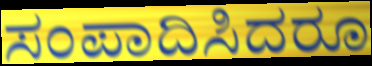
ಸಂಪಾದಿಸಿದರೂ